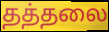
தத்தலை